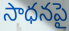
సాధనపై